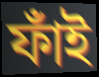
ফাঁই